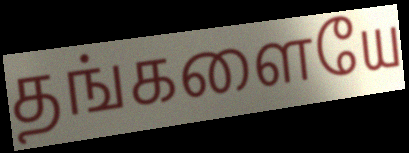
தங்களையே